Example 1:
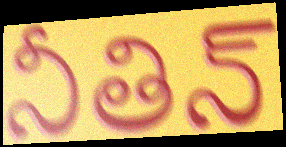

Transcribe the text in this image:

నీతిన్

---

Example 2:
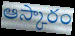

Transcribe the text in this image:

ఆస్కారం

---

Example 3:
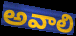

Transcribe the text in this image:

అవాలి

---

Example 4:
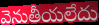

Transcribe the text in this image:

వెనుతీయలేదు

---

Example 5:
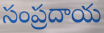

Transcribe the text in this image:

సంప్రదాయ